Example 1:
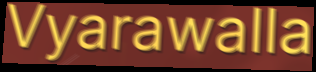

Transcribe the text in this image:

Vyarawalla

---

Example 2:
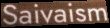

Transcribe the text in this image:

Saivaism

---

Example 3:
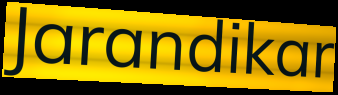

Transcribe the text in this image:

Jarandikar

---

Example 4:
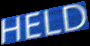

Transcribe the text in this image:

HELD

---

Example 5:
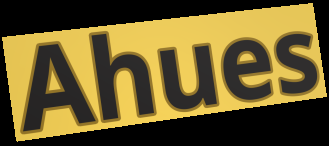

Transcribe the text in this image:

Ahues